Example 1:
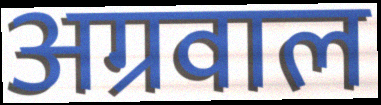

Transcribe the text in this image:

अग्रवाल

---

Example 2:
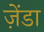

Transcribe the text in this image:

ज़ेंडा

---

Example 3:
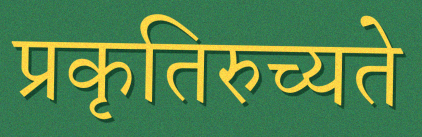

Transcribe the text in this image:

प्रकृतिरुच्यते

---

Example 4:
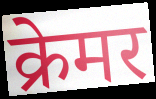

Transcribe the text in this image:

क्रेमर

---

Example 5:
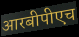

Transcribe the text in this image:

आरबीपीएच